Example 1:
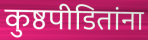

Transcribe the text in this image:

कुष्ठपीडितांना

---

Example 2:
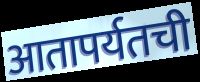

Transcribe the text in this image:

आतापर्यतची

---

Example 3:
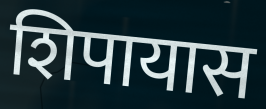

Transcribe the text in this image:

शिपायास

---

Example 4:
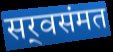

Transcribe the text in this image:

सर्वसंमत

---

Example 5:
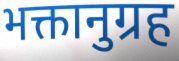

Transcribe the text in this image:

भक्तानुग्रह